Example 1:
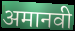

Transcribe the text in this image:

अमानवी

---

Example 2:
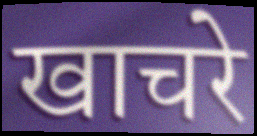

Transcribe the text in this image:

खाचरे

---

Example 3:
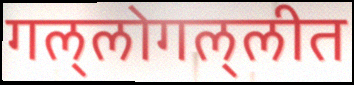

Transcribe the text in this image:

गल्लोगल्लीत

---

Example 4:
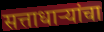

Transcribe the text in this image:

सत्ताधाऱ्यांचा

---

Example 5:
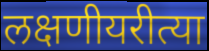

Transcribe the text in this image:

लक्षणीयरीत्या